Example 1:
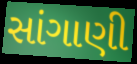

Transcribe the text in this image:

સાંગાણી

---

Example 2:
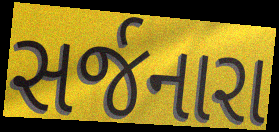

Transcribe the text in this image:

સર્જનારા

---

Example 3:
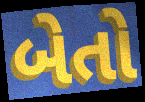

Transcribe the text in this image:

બેતો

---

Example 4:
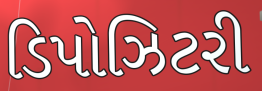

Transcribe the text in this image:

ડિપોઝિટરી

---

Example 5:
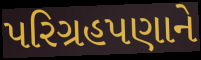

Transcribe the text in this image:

પરિગ્રહપણાને